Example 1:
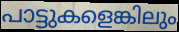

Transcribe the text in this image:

പാട്ടുകളെങ്കിലും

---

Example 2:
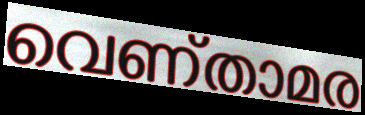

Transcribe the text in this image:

വെണ്താമര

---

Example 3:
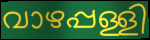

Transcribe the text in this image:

വാഴപ്പള്ളി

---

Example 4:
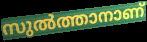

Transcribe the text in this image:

സുൽത്താനാണ്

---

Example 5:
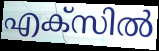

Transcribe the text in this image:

എക്സിൽ